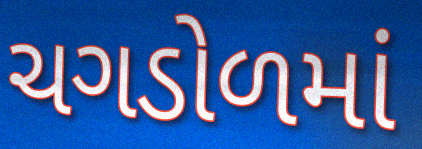
ચગડોળમાં